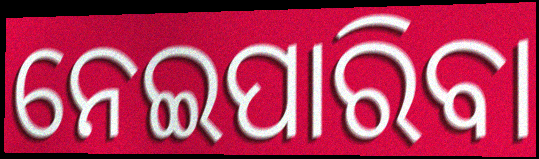
ନେଇପାରିବା